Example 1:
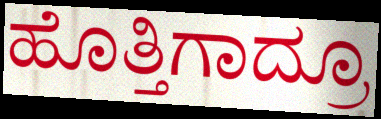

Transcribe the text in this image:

ಹೊತ್ತಿಗಾದ್ರೂ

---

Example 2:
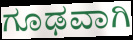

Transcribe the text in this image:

ಗೂಢವಾಗಿ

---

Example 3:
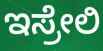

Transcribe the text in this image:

ಇಸ್ರೇಲಿ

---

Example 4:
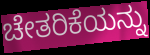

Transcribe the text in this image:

ಚೇತರಿಕೆಯನ್ನು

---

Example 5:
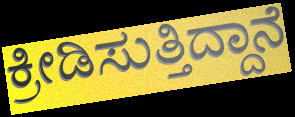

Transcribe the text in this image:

ಕ್ರೀಡಿಸುತ್ತಿದ್ದಾನೆ